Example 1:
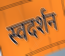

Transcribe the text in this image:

स्वदर्शन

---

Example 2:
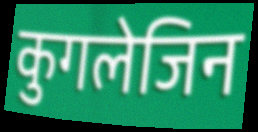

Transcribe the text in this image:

कुगलेजिन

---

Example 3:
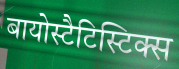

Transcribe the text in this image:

बायोस्टैटिस्टिक्स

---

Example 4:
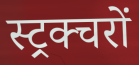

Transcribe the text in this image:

स्ट्रक्चरों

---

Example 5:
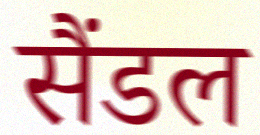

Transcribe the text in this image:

सैंडल